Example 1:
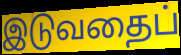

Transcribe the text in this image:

இடுவதைப்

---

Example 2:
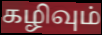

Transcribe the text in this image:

கழிவும்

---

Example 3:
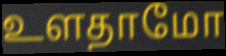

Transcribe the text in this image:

உளதாமோ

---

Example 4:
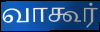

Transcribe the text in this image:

வாகூர்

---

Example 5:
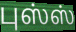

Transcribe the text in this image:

புஸ்ஸ்